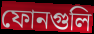
ফোনগুলি